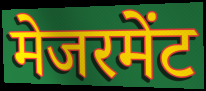
मेजरमेंट